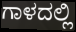
ಗಾಳದಲ್ಲಿ